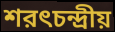
শরৎচন্দ্রীয়